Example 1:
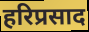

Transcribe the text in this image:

हरिप्रसाद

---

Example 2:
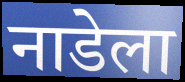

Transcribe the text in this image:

नाडेला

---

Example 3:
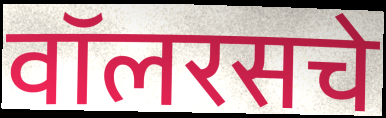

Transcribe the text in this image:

वॉलरसचे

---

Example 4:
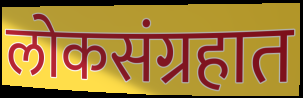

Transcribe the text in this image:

लोकसंग्रहात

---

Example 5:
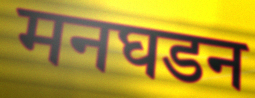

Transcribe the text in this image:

मनघडन